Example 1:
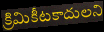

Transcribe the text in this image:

క్రిమికీటకాదులని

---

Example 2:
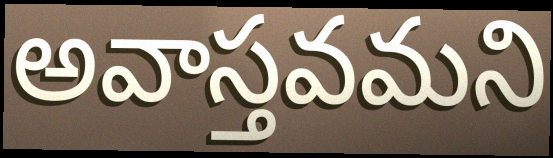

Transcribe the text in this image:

అవాస్తవమని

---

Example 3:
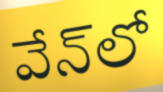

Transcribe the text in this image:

వేన్‌లో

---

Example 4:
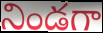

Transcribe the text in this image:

నిండగా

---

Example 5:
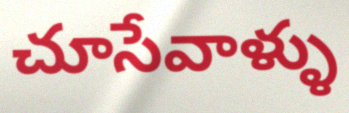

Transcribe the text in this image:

చూసేవాళ్ళు